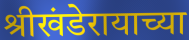
श्रीखंडेरायाच्या